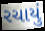
રચાયું